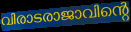
വിരാടരാജാവിന്റെ